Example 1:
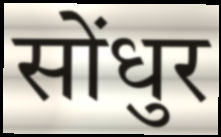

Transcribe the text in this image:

सोंधुर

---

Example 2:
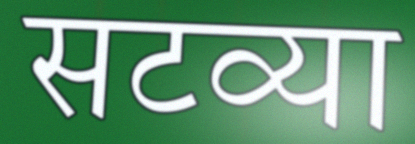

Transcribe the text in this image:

सटव्या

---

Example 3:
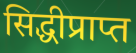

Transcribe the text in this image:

सिद्धीप्राप्त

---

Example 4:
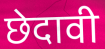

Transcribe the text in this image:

छेदावी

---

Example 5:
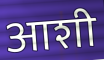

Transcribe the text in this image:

आशी